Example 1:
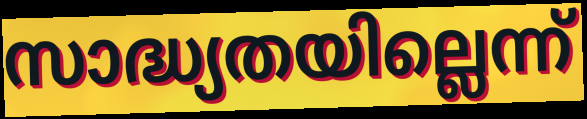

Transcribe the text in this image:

സാദ്ധ്യതയില്ലെന്ന്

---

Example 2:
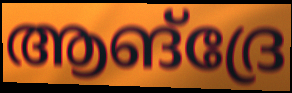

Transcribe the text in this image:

ആങ്ദ്രേ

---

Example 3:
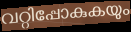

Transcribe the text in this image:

വറ്റിപ്പോകുകയും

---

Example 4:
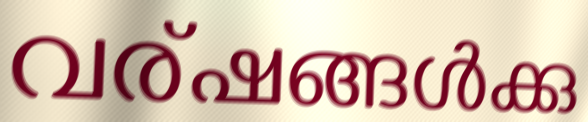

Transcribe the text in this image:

വര്ഷങ്ങൾക്കു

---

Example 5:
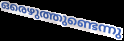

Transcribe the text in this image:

ഒരെഴുത്തുണ്ടെന്നു